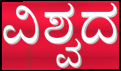
ವಿಶ್ವದ